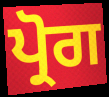
ਪ੍ਰੋਗ